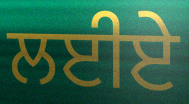
ਲਈਏ